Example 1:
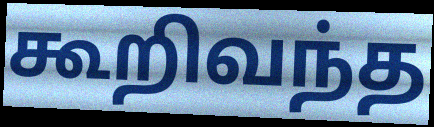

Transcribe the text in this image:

கூறிவந்த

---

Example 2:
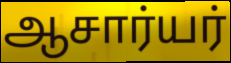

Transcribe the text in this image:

ஆசார்யர்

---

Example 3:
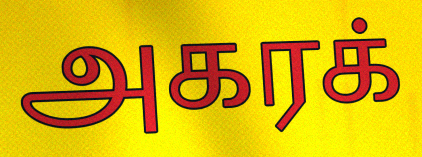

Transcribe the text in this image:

அகரக்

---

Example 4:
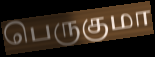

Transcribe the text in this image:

பெருகுமா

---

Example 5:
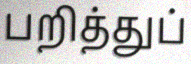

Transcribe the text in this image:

பறித்துப்